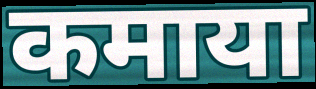
कमाया